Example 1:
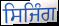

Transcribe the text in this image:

ਸਿਜਿੰਗ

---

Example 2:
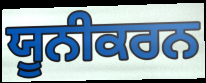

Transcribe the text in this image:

ਯੂਨੀਕਰਨ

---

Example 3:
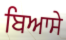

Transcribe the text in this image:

ਬਿਆਸੇ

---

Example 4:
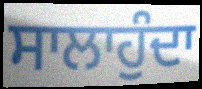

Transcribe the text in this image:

ਸਾਲਾਹੁੰਦਾ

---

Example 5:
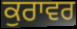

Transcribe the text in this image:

ਕੁਰਾਵਰ